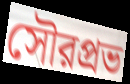
সৌরপ্রভ